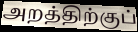
அறத்திற்குப்